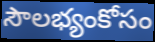
సౌలభ్యంకోసం